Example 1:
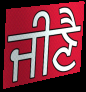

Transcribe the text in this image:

ਜੀਣੈ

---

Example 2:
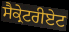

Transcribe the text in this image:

ਸੈਕ੍ਰੇਟਰੀਏਟ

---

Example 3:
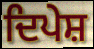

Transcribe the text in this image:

ਦਿਪੇਸ਼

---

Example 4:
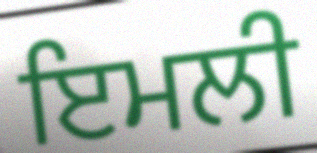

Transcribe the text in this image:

ਇਮਲੀ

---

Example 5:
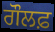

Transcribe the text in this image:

ਗੌਲਫ਼